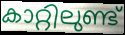
കാറ്റിലുണ്ട്